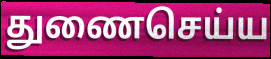
துணைசெய்ய